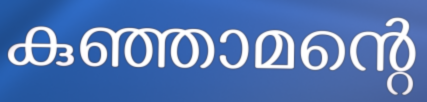
കുഞ്ഞാമന്റെ